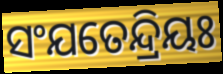
ସଂଯତେନ୍ଦ୍ରିୟଃ